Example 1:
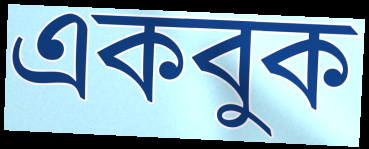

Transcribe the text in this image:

একবুক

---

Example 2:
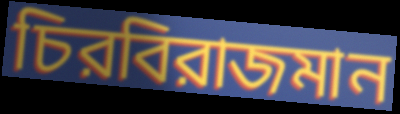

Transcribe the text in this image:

চিরবিরাজমান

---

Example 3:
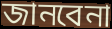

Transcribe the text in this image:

জানবেনা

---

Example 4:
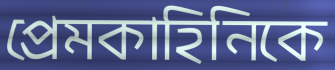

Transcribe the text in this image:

প্রেমকাহিনিকে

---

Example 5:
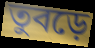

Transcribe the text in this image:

তুবড়ে